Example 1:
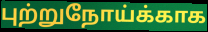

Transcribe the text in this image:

புற்றுநோய்க்காக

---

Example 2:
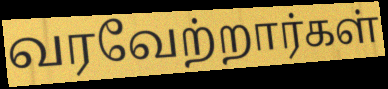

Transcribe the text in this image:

வரவேற்றார்கள்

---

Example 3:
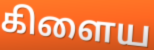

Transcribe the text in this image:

கிளைய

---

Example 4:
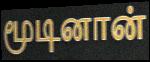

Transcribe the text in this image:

மூடினான்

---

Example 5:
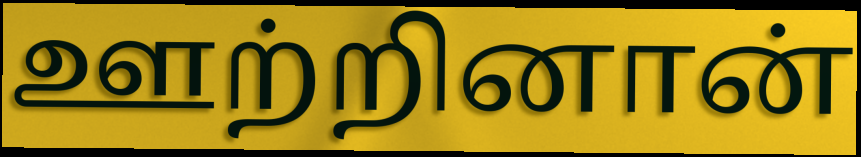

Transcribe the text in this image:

ஊற்றினான்